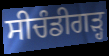
ਸੀਚੰਡੀਗੜ੍ਹ